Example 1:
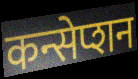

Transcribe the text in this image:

कन्सेप्शन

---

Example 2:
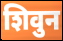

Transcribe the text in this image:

शिवुन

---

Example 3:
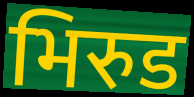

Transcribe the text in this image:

भिरुड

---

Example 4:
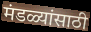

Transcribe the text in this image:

मंडळ्यांसाठी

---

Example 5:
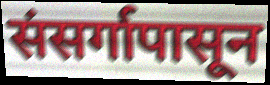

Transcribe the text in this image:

संसर्गापासून